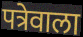
पत्रेवाला